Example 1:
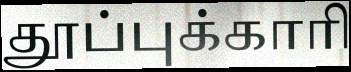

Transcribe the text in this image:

தூப்புக்காரி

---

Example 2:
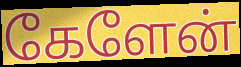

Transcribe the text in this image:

கேளேன்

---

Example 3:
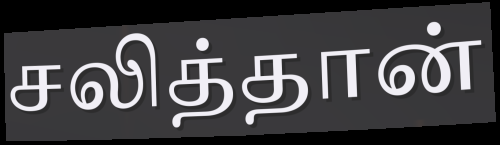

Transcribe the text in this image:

சலித்தான்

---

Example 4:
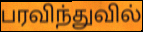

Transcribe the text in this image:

பரவிந்துவில்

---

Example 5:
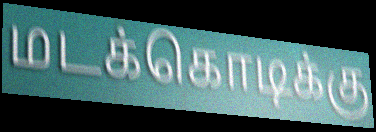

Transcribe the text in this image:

மடக்கொடிக்கு